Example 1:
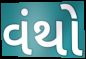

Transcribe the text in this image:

વંથો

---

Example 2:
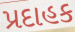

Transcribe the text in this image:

પ્રદાહક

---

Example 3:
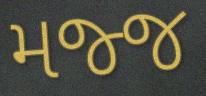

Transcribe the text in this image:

મજ્જ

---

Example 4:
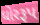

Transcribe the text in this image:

ઘોરરૂપ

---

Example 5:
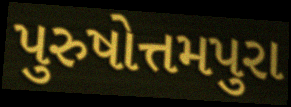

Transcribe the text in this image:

પુરુષોત્તમપુરા